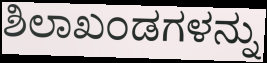
ಶಿಲಾಖಂಡಗಳನ್ನು